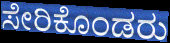
ಸೇರಿಕೊಂಡರು